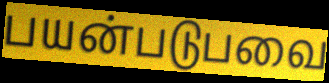
பயன்படுபவை